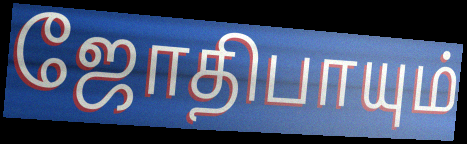
ஜோதிபாயும்